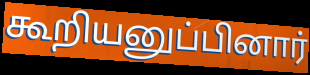
கூறியனுப்பினார்